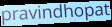
pravindhopat